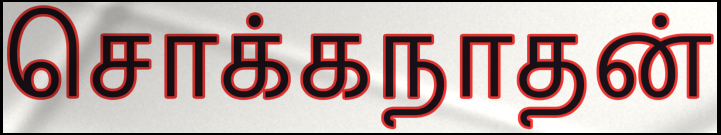
சொக்கநாதன்